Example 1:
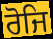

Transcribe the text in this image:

ਰੋਜਿ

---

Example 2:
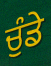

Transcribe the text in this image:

ਚੁੰਡੇ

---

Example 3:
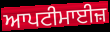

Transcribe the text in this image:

ਆਪਟੀਮਾਈਜ਼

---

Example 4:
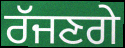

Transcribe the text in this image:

ਰੱਜਣਗੇ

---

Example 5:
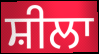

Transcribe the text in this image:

ਸ਼ੀਲਾ